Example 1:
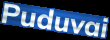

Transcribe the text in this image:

Puduvai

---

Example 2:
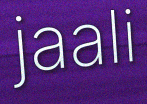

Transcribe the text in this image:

jaali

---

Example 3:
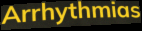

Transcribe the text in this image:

Arrhythmias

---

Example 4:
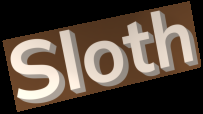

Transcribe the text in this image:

Sloth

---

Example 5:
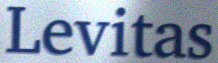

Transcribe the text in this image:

Levitas